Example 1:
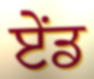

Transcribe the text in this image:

ਏੰਡ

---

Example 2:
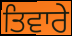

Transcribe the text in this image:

ਤਿਵਾਰੇ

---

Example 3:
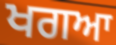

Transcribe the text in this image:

ਖਗਆ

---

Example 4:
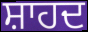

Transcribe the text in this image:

ਸ਼ਾਹਦ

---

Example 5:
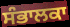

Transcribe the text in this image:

ਸੰਭਾਲਕਾ